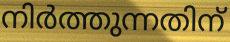
നിർത്തുന്നതിന്